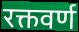
रक्तवर्ण